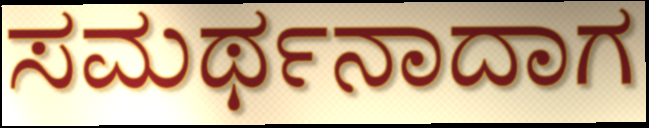
ಸಮರ್ಥನಾದಾಗ